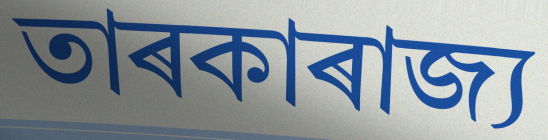
তাৰকাৰাজ্য